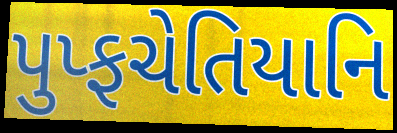
પુપ્ફચેતિયાનિ